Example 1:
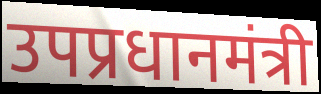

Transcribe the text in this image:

उपप्रधानमंत्री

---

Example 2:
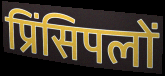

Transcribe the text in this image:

प्रिंसिपलों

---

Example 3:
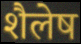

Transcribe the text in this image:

शैलेष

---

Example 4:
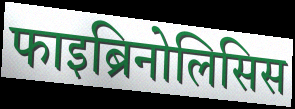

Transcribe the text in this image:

फाइब्रिनोलिसिस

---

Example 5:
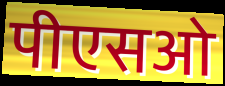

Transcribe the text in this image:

पीएसओ